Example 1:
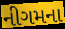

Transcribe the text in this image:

નીગમના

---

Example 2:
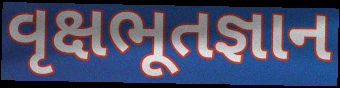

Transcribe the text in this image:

વૃક્ષભૂતજ્ઞાન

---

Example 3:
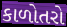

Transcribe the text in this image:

કાળોતરો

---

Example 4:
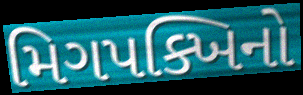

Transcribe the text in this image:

મિગપક્ખિનો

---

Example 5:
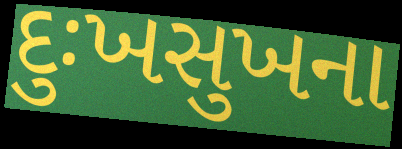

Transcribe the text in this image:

દુઃખસુખના